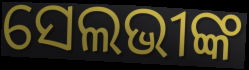
ସେଲଭୀଙ୍କ